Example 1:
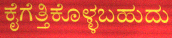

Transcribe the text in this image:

ಕೈಗೆತ್ತಿಕೊಳ್ಳಬಹುದು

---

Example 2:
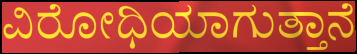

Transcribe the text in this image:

ವಿರೋಧಿಯಾಗುತ್ತಾನೆ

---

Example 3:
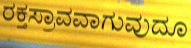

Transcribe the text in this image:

ರಕ್ತಸ್ರಾವವಾಗುವುದೂ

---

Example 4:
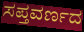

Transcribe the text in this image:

ಸಪ್ತವರ್ಣದ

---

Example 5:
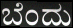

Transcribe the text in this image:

ಬೆಂದು